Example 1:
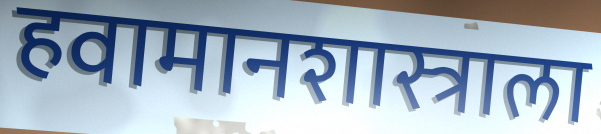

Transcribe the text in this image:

हवामानशास्त्राला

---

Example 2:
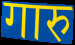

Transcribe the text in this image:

गारु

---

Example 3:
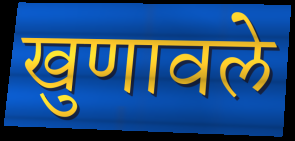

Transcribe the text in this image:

खुणावले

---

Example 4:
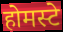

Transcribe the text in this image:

होमस्टे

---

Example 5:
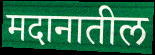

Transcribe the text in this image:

मदानातील